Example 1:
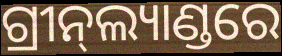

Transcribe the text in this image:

ଗ୍ରୀନ୍‍ଲ୍ୟାଣ୍ଡରେ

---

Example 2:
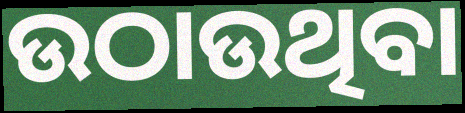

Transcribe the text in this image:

ଉଠାଉଥିବା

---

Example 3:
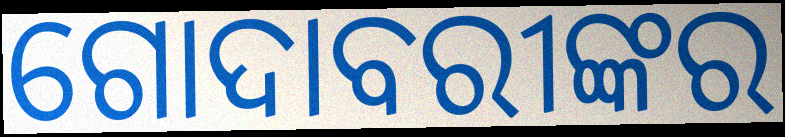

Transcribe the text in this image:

ଗୋଦାବରୀଙ୍କର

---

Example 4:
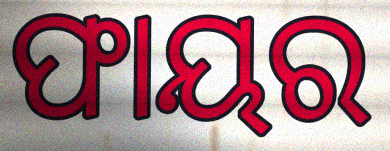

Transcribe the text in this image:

ଫାୟର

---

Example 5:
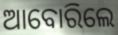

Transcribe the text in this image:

ଆବୋରିଲେ